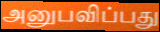
அனுபவிப்பது